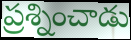
ప్రశ్నించాడు